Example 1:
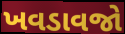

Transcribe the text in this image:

ખવડાવજો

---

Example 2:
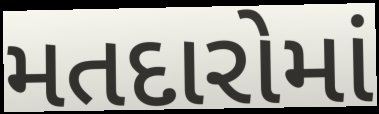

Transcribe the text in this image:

મતદારોમાં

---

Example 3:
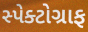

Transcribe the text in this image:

સ્પેક્ટોગ્રાફ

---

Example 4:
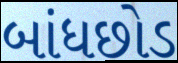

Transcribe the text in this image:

બાંધછોડ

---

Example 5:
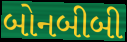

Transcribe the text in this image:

બોનબીબી